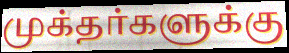
முக்தர்களுக்கு